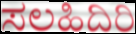
ಸಲಹಿದಿರಿ